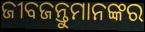
ଜୀବଜନ୍ତୁମାନଙ୍କର